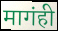
मागंही